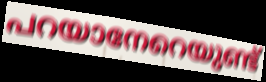
പറയാനേറെയുണ്ട്